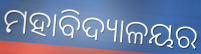
ମହାବିଦ୍ୟାଳୟର